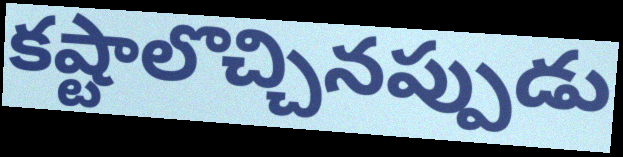
కష్టాలొచ్చినప్పుడు